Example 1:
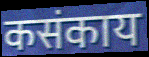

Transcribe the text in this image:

कसंकाय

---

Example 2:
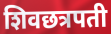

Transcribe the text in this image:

शिवछत्रपती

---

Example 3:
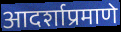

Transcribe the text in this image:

आदर्शाप्रमाणे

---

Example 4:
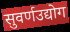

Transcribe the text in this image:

सुवर्णउद्योग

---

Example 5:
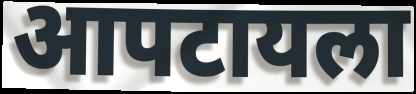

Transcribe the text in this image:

आपटायला